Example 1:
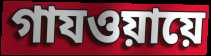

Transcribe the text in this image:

গাযওয়ায়ে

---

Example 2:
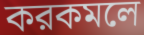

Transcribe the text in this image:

করকমলে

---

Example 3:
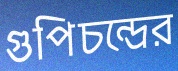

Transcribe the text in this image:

গুপিচন্দ্রের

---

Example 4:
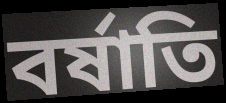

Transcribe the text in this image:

বর্ষাতি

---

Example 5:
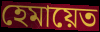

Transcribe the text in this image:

হেমায়েত